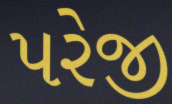
પરેજી